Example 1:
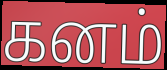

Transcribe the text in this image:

கனம்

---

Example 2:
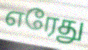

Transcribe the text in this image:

எரேது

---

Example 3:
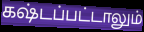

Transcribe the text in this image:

கஷ்டப்பட்டாலும்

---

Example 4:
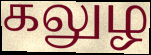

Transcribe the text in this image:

கலுழ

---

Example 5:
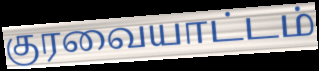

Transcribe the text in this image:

குரவையாட்டம்